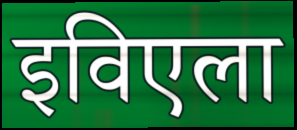
इविएला